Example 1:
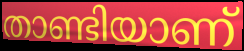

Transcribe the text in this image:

താണ്ടിയാണ്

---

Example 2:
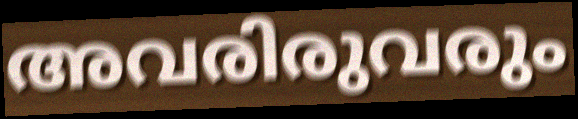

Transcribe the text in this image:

അവരിരുവരും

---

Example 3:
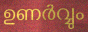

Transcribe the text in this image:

ഉണർവ്വും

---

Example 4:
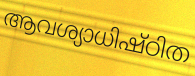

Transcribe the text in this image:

ആവശ്യാധിഷ്ഠിത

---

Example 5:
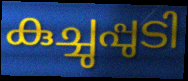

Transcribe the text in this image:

കുച്ചുപ്പുടി